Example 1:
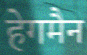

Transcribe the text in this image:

हेगमैन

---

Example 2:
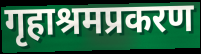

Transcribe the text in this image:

गृहाश्रमप्रकरण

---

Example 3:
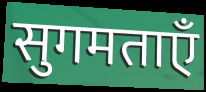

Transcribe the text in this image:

सुगमताएँ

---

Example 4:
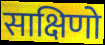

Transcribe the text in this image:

साक्षिणो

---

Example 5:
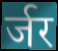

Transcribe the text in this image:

र्जर